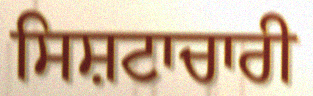
ਸਿਸ਼ਟਾਚਾਰੀ